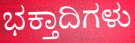
ಭಕ್ತಾದಿಗಳು